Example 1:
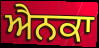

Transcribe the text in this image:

ਐਨਕਾ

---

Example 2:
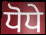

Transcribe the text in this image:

ਧੋਧੇ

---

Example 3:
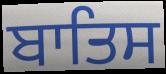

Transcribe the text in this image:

ਬਾਤਿਸ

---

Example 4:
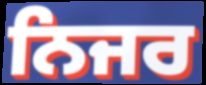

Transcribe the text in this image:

ਨਿਜਰ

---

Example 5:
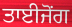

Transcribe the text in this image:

ਤਾਈਜੋਂਗ